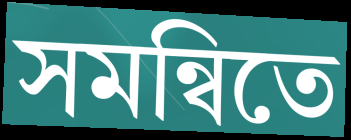
সমন্বিতে